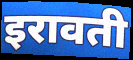
इरावती